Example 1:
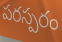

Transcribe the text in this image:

పరస్పరం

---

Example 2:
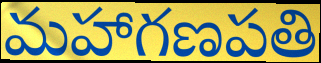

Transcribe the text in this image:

మహాగణపతి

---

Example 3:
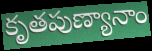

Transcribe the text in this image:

కృతపుణ్యానాం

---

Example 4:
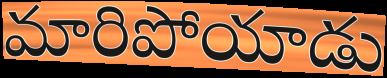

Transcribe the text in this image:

మారిపోయాడు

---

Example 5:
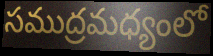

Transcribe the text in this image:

సముద్రమధ్యంలో